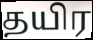
தயிர